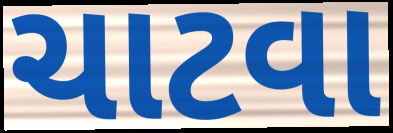
ચાટવા